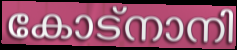
കോട്നാനി